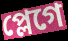
প্লেগে